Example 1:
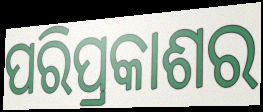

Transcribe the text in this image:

ପରିପ୍ରକାଶର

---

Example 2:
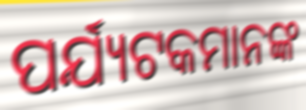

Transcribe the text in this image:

ପର୍ଯ୍ୟଟକମାନଙ୍କ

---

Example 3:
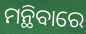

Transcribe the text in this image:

ମନ୍ଥିବାରେ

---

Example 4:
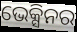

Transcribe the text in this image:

ଭେକ୍ସିନର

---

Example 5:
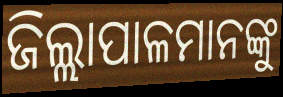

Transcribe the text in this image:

ଜିଲ୍ଲାପାଳମାନଙ୍କୁ